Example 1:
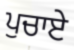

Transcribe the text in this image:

ਪੁਚਾਏ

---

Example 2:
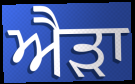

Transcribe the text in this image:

ਐੜਾ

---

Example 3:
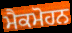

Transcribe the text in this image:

ਮੈਕਮੋਹਨ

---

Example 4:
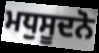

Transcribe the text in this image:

ਮਧੁਸੂਦਨੋ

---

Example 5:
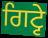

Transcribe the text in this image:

ਗਿਟ੍ਟੇ